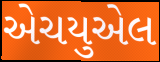
એચયુએલ